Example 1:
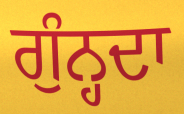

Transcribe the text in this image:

ਗੁੰਨ੍ਹਦਾ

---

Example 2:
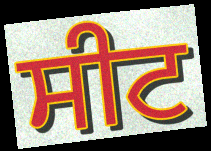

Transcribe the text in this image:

ਸੀਟ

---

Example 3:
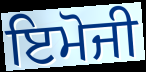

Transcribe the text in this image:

ਇਮੋਜੀ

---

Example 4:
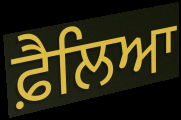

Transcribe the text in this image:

ਫ਼ੈਲਿਆ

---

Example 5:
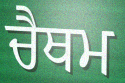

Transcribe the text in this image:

ਚੈਥਮ